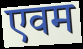
एवम